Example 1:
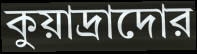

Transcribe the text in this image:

কুয়াদ্রাদোর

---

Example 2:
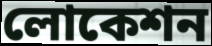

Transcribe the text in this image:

লোকেশন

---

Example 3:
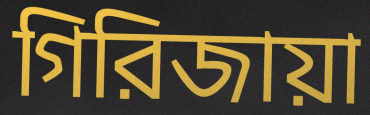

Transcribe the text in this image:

গিরিজায়া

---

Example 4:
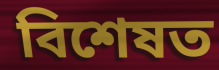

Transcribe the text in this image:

বিশেষত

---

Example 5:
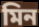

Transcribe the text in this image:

মিন